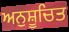
ਅਨੁਸ਼ੂਚਿਤ